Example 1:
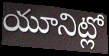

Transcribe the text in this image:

యూనిట్లో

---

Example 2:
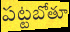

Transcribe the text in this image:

పట్టబోతూ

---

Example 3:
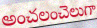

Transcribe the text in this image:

అంచలంచెలుగా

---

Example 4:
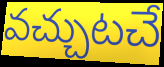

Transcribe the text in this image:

వచ్చుటచే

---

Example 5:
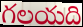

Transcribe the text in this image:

గలయది